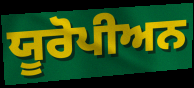
ਯੂਰੋਪੀਅਨ